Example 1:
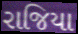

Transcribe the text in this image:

રાજિયા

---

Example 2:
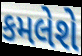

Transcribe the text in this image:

કમલેશે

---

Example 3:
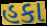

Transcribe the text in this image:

હકા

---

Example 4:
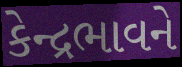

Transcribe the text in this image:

કેન્દ્રભાવને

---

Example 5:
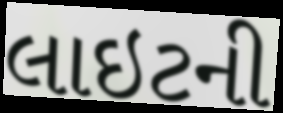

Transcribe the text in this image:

લાઇટની